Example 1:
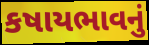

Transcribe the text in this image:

કષાયભાવનું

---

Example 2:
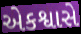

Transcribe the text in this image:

એકશ્વાસે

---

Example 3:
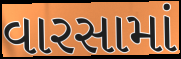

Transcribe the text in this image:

વારસામાં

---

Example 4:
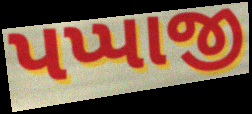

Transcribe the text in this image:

પપ્પાજી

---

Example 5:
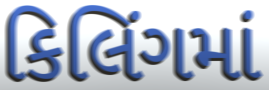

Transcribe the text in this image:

કિલિંગમાં